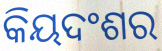
କିୟଦଂଶର